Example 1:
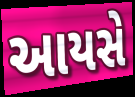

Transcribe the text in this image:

આયસે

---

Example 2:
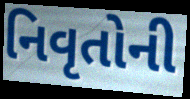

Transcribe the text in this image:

નિવૃતોની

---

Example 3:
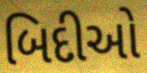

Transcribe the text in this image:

બિદીઓ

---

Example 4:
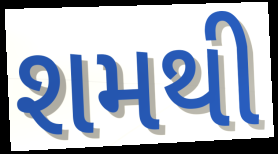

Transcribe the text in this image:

શમથી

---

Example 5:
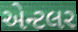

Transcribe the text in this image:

એન્ટલર